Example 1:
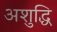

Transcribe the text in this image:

अशुद्धि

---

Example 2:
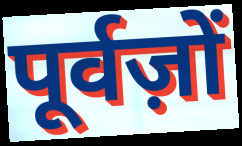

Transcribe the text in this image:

पूर्वज़ों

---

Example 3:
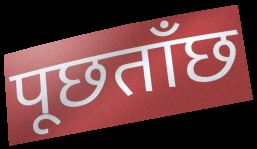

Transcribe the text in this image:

पूछताँछ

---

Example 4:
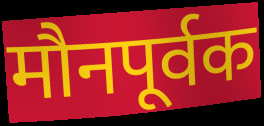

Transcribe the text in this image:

मौनपूर्वक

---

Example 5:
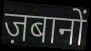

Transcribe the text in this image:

ज़बानों